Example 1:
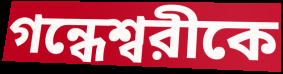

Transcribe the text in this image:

গন্ধেশ্বরীকে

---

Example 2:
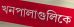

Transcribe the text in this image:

খনপালাগুলিকে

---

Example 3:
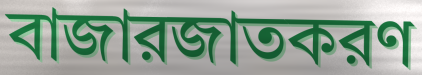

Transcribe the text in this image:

বাজারজাতকরণ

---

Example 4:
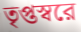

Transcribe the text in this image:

তৃপ্তস্বরে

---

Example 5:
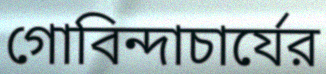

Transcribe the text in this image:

গোবিন্দাচার্যের